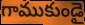
గాముకుండై